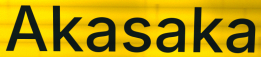
Akasaka